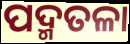
ପଦ୍ମତଳା